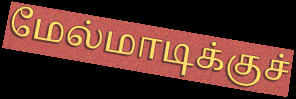
மேல்மாடிக்குச்